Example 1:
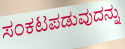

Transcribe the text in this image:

ಸಂಕಟಪಡುವುದನ್ನು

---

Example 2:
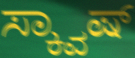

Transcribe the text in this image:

ಸ್ಕ್ವಾಷ್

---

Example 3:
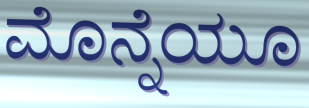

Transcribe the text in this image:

ಮೊನ್ನೆಯೂ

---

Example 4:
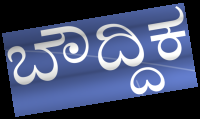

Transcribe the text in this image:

ಬೌದ್ದಿಕ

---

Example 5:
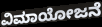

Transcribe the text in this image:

ವಿಮಾಯೋಜನೆ